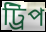
ট্রিপ